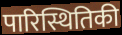
पारिस्थितिकी